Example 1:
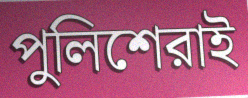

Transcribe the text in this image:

পুলিশেরাই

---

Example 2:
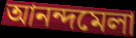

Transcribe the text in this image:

আনন্দমেলা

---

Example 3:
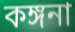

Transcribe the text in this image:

কঙ্গনা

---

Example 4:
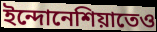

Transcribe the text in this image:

ইন্দোনেশিয়াতেও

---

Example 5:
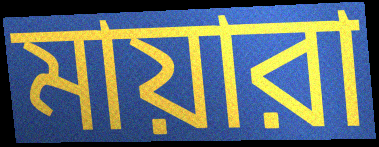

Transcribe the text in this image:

মায়ারা